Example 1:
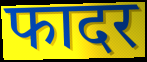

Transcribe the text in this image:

फादर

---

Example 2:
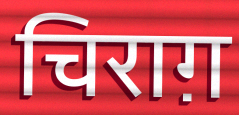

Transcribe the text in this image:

चिराग़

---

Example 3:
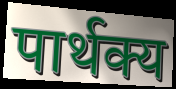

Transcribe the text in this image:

पार्थक्य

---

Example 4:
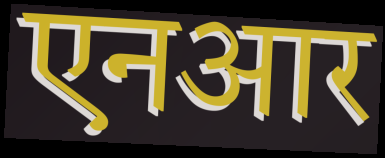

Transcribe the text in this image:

एनआर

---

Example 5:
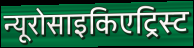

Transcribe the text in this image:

न्यूरोसाइकिएट्रिस्ट